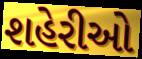
શહેરીઓ